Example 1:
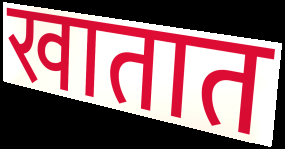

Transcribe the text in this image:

खातात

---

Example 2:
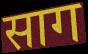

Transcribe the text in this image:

साग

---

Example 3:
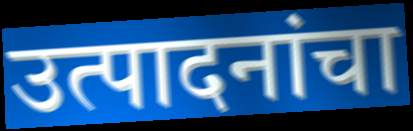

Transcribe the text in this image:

उत्पादनांचा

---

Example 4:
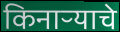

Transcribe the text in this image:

किनाऱ्याचे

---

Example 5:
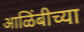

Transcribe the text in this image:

आळिंबीच्या